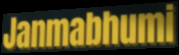
Janmabhumi